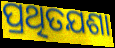
ପ୍ରଥିତଯଶା